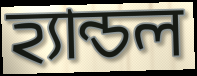
হ্যান্ডল